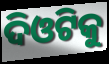
ଦିଓଟିକୁ